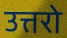
उत्तरो